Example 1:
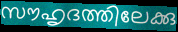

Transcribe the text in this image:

സൗഹൃദത്തിലേക്കു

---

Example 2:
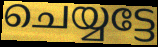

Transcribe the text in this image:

ചെയ്യട്ടേ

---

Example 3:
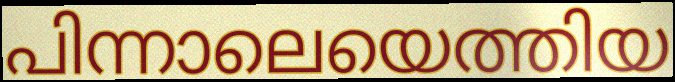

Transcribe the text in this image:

പിന്നാലെയെത്തിയ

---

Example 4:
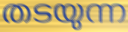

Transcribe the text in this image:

തടയുന്ന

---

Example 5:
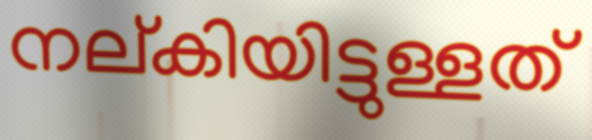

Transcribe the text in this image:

നല്കിയിട്ടുള്ളത്